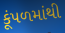
કૂંપળમાંથી